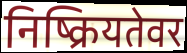
निष्क्रियतेवर